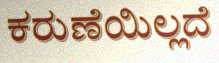
ಕರುಣೆಯಿಲ್ಲದೆ